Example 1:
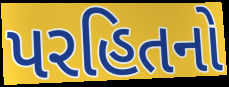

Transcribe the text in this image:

પરહિતનો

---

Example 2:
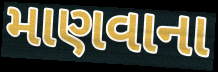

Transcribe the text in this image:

માણવાના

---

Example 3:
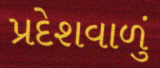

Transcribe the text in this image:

પ્રદેશવાળું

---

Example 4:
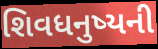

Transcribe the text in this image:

શિવધનુષ્યની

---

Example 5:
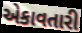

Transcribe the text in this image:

એકાવતારી